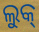
ଲୁକ୍